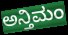
ಅನ್ತಿಮಂ